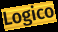
Logico